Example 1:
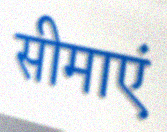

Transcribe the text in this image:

सीमाएं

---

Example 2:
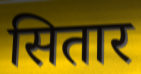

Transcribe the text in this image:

सितार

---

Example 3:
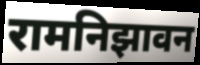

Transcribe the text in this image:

रामनिझावन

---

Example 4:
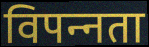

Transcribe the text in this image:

विपन्नता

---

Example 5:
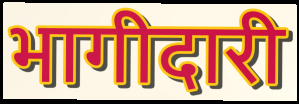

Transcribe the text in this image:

भागीदारी